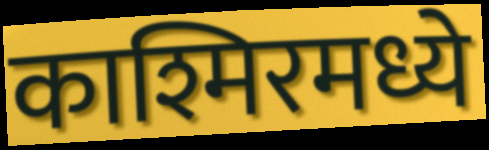
काश्मिरमध्ये